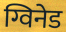
ग्विनेड